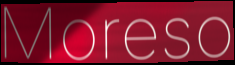
Moreso